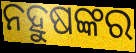
ନହୁଷଙ୍କର